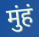
मुंहं